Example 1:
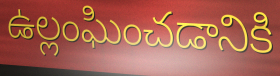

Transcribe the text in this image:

ఉల్లంఘించడానికి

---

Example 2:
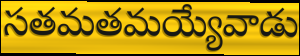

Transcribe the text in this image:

సతమతమయ్యేవాడు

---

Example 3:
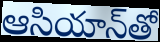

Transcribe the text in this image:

ఆసియాన్‌తో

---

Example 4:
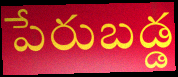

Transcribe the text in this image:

పేరుబడ్డ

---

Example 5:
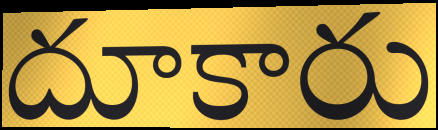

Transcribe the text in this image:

దూకారు